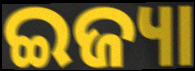
ଇଜ୍ୟା